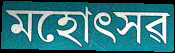
মহোৎসৱ